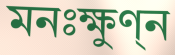
মনঃক্ষুণ্ন